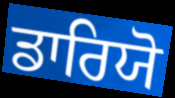
ਡਾਰਿਯੋ